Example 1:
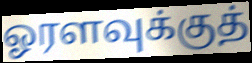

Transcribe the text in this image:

ஓரளவுக்குத்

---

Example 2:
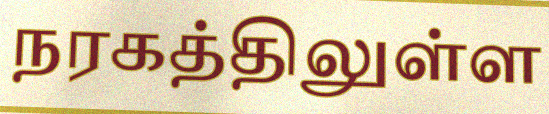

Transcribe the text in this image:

நரகத்திலுள்ள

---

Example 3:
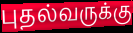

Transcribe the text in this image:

புதல்வருக்கு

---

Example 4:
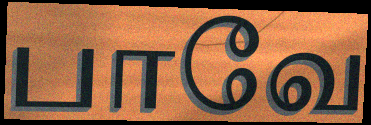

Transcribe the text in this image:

பாவே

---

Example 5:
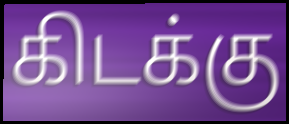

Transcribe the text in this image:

கிடக்கு